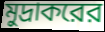
মুদ্রাকরের